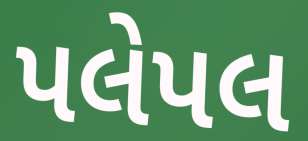
પલેપલ